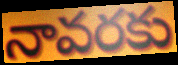
నావరకు